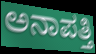
ಅನಾಪತ್ತಿ